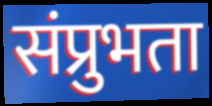
संप्रुभता